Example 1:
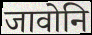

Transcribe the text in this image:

जावोनि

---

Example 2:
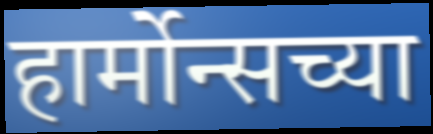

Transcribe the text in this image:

हार्मोन्सच्या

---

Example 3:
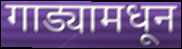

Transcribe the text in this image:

गाड्यामधून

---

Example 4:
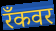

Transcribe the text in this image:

रँकवर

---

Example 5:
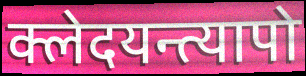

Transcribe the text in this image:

क्लेदयन्त्यापो